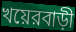
খয়েরবাড়ী